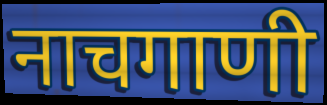
नाचगाणी